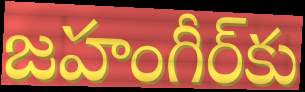
జహంగీర్‌కు